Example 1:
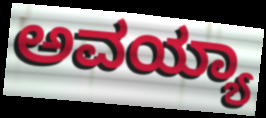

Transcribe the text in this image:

ಅವಯ್ಯಾ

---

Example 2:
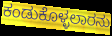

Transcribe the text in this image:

ಕಂಡುಕೊಳ್ಳಲಾರನು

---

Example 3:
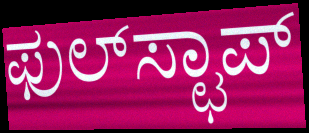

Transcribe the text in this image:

ಫುಲ್‍ಸ್ಟಾಪ್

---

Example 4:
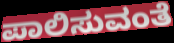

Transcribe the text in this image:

ಪಾಲಿಸುವಂತೆ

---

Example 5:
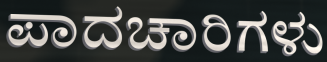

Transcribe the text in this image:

ಪಾದಚಾರಿಗಳು